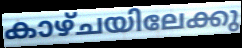
കാഴ്ചയിലേക്കു